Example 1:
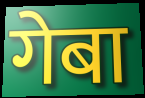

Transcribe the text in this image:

गेबा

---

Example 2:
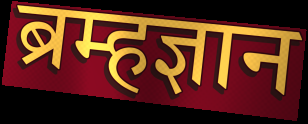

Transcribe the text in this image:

ब्रम्हज्ञान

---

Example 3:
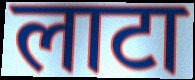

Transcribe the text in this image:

लाटा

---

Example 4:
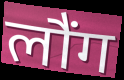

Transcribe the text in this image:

लौंग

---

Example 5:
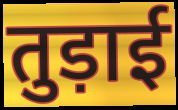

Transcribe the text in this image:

तुड़ाई